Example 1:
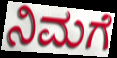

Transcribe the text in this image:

ನಿಮಗೆ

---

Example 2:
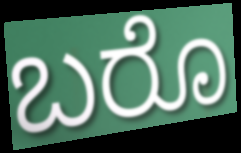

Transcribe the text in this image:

ಬರೊ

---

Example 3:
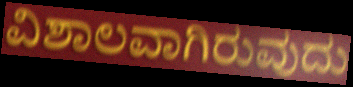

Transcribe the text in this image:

ವಿಶಾಲವಾಗಿರುವುದು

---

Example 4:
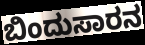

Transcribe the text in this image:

ಬಿಂದುಸಾರನ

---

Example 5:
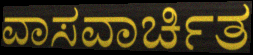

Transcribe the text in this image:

ವಾಸವಾರ್ಚಿತ